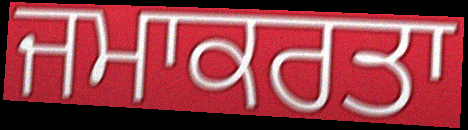
ਜਮਾਕਰਤਾ